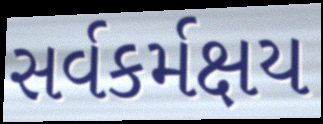
સર્વકર્મક્ષય